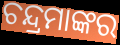
ଚନ୍ଦ୍ରମାଙ୍କର